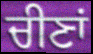
ਚੀਣਾਂ